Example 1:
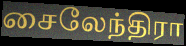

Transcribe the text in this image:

சைலேந்திரா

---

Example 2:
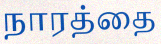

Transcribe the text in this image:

நாரத்தை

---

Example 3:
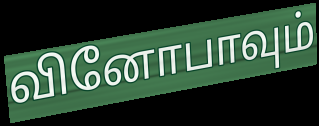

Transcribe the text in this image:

வினோபாவும்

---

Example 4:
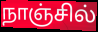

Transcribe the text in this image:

நாஞ்சில்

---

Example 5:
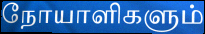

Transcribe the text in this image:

நோயாளிகளும்